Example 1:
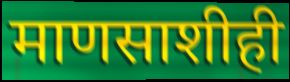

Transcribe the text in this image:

माणसाशीही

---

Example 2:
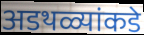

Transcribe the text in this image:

अडथळ्यांकडे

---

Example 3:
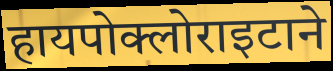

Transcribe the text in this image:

हायपोक्लोराइटाने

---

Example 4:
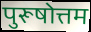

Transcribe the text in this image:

पुरूषोत्तम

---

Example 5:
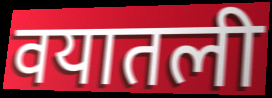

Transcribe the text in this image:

वयातली